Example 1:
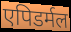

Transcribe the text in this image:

एपिडर्मल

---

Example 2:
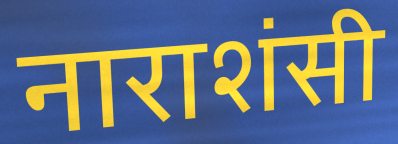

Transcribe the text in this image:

नाराशंसी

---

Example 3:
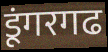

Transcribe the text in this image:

डूंगरगढ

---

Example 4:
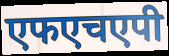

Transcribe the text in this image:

एफएचएपी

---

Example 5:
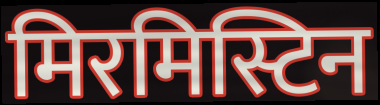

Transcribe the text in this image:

मिरमिस्टिन